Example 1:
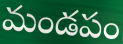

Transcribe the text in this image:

మండపం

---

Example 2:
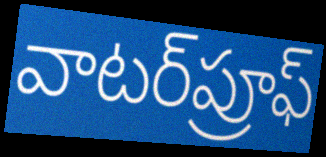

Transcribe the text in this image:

వాటర్‌ప్రూఫ్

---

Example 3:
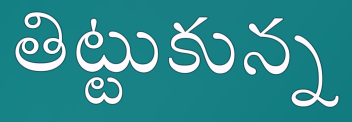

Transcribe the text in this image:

తిట్టుకున్న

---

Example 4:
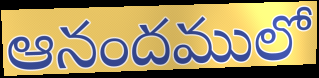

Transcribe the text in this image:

ఆనందములో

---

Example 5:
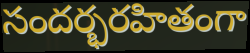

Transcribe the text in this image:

సందర్భరహితంగా